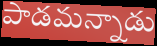
పాడమన్నాడు